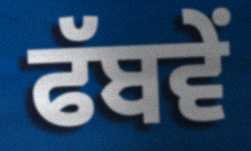
ਫੱਬਵੇਂ